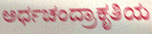
ಅರ್ಧಚಂದ್ರಾಕೃತಿಯ